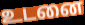
உடனை